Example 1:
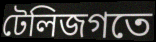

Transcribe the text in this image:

টেলিজগতে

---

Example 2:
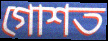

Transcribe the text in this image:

গোশত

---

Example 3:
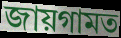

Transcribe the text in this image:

জায়গামত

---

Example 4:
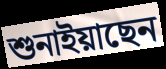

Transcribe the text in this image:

শুনাইয়াছেন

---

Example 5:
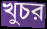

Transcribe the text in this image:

খুচর